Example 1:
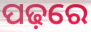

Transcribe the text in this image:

ପଢ଼ରେ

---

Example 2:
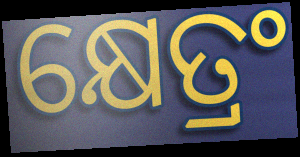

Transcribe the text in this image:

କ୍ଷେତ୍ରଂ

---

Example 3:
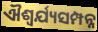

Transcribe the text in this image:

ଐଶ୍ୱର୍ଯ୍ୟସମ୍ପନ୍ନ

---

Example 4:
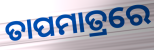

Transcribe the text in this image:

ତାପମାତ୍ରରେ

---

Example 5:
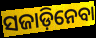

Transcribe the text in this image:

ସଜାଡ଼ିନେବା